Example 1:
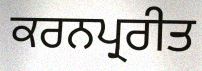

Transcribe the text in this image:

ਕਰਨਪ੍ਰਰੀਤ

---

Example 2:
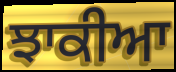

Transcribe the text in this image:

ਝਾਕੀਆ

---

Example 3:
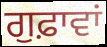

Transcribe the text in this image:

ਗੁਫ਼ਾਵਾਂ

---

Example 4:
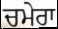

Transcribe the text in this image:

ਚਮੇਰਾ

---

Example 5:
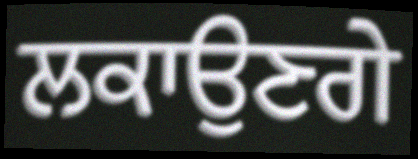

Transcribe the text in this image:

ਲਕਾਉਣਗੇ